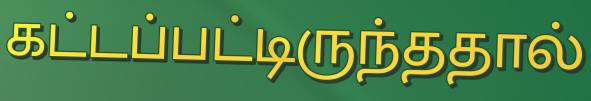
கட்டப்பட்டிருந்ததால்